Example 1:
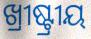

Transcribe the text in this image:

ଖ୍ରୀଷ୍ଟ୍ରୀୟ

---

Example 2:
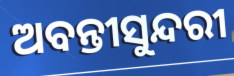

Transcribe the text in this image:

ଅବନ୍ତୀସୁନ୍ଦରୀ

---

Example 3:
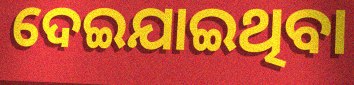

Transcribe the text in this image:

ଦେଇଯାଇଥିବା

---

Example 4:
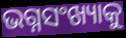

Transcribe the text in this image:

ଭଗ୍ନସଂଖ୍ୟାକୁ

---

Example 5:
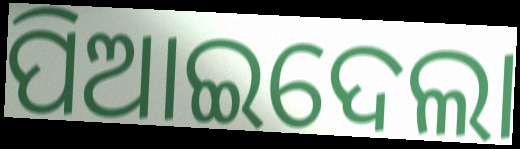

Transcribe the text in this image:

ପିଆଇଦେଲା